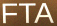
FTA